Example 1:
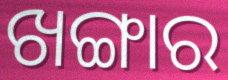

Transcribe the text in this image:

ଖଙ୍ଗାର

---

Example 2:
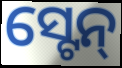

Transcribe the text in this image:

ସ୍ଟେନ୍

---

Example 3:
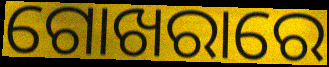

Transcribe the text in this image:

ଗୋଖରାରେ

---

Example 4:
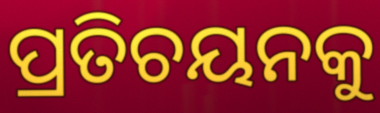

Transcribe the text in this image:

ପ୍ରତିଚୟନକୁ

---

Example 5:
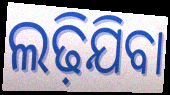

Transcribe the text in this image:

ଲଢ଼ିଯିବା